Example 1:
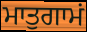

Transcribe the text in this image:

ਮਾਤੁਗਾਮਂ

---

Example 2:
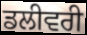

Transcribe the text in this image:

ਡਲੀਵਰੀ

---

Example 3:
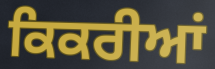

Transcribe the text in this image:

ਕਿਕਰੀਆਂ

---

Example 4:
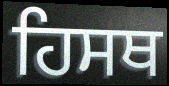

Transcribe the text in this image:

ਹਿਸਥ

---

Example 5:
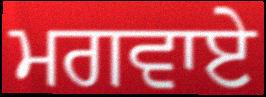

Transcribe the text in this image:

ਮਗਵਾਏ